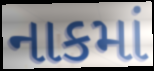
નાકમાં